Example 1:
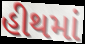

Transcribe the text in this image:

હીથમાં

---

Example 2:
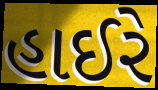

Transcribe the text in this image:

હાઈરે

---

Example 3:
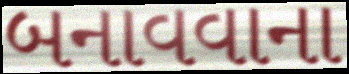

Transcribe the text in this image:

બનાવવાના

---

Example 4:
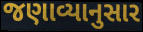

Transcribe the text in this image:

જણાવ્યાનુસાર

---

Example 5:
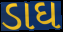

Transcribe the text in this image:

ડાઘ